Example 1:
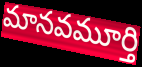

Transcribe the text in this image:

మానవమూర్తి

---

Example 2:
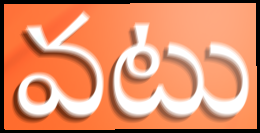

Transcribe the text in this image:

వటు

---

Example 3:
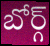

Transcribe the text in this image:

బోర్గ్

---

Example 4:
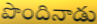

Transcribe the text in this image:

పొందినాడు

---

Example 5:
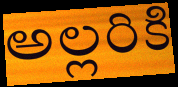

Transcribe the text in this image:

అల్లరికి